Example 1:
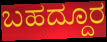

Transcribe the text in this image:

ಬಹದ್ದೂರ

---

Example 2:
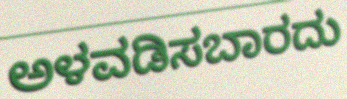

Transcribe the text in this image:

ಅಳವಡಿಸಬಾರದು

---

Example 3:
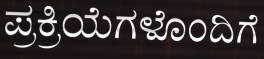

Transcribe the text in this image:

ಪ್ರಕ್ರಿಯೆಗಳೊಂದಿಗೆ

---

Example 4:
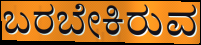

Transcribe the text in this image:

ಬರಬೇಕಿರುವ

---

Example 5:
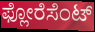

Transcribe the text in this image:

ಫ್ಲೋರೆಸೆಂಟ್